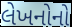
લેખનોનો